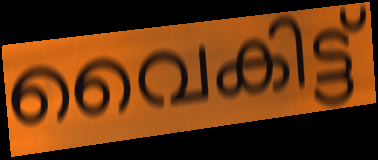
വൈകിട്ട്